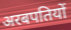
अरबपतियों